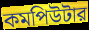
কমপিউটার